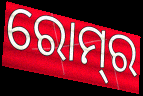
ରୋମ୍‌ର